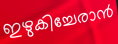
ഇഴുകിച്ചേരാൻ